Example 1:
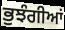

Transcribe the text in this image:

ਭੁਝੰਗੀਆਂ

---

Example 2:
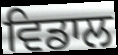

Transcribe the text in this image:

ਵਿਡਾਲ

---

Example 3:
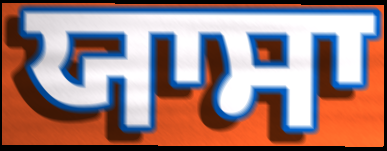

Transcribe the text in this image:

ਯਾਸਾ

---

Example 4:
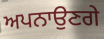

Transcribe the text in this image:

ਅਪਨਾਉਣਗੇ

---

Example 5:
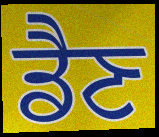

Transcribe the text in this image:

ਡੈਣ